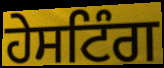
ਹੇਸਟਿੰਗ